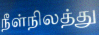
நீள்நிலத்து